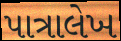
પાત્રાલેખ